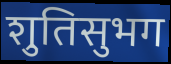
श्रुतिसुभग